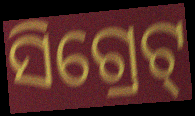
ସିଗ୍ରେଟ୍